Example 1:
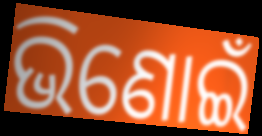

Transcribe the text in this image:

ଭିଣୋଇଁ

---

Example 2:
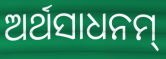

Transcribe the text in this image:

ଅର୍ଥସାଧନମ୍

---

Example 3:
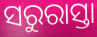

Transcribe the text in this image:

ସରୁରାସ୍ତା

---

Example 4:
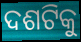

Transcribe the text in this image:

ଦଶଟିକୁ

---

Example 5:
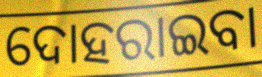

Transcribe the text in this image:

ଦୋହରାଇବା